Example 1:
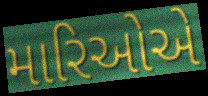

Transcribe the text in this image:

મારિઓએ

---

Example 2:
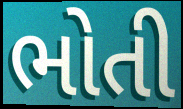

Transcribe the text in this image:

ભોતી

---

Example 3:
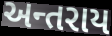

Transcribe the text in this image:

અન્તરાય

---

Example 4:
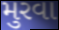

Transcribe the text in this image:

મુરવા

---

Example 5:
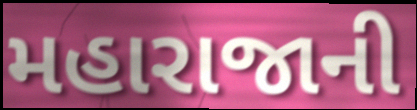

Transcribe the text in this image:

મહારાજાની